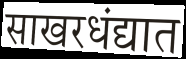
साखरधंद्यात